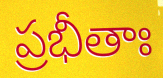
ప్రభీతాః